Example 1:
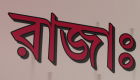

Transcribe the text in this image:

রাজাঃ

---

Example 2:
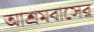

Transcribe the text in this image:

আশ্রমবাসের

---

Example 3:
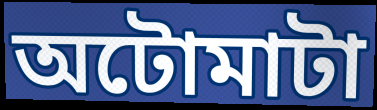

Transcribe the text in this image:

অটোমাটা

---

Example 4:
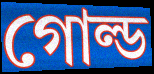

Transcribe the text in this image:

গোল্ড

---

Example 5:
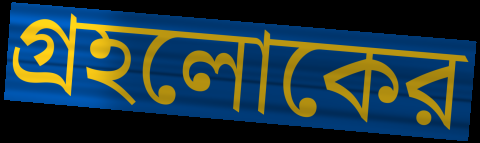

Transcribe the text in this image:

গ্রহলোকের